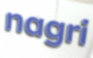
nagri